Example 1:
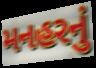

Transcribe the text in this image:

મનહરનું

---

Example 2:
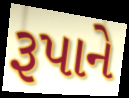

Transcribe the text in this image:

રૂપાને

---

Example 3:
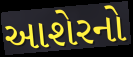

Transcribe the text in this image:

આશેરનો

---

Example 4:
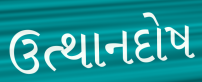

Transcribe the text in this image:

ઉત્થાનદોષ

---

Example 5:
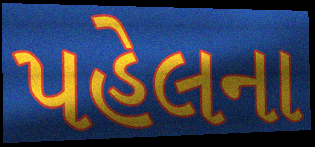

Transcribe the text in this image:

પહેલના